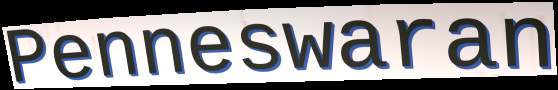
Penneswaran